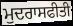
ਮੁਦਰਾਸਫੀਤੀ